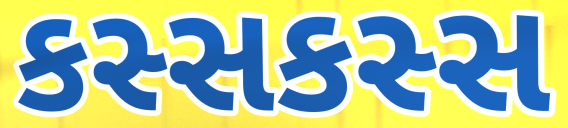
કસ્સકસ્સ